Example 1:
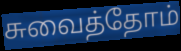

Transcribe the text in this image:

சுவைத்தோம்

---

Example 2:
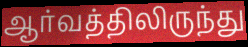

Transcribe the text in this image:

ஆர்வத்திலிருந்து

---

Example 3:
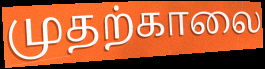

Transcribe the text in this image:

முதற்காலை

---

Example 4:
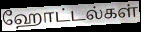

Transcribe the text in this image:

ஹோட்டல்கள்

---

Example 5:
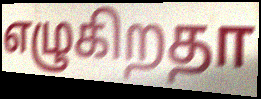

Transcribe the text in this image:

எழுகிறதா